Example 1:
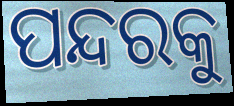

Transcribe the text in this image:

ପନ୍ଦରକୁ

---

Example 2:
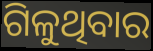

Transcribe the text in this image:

ଗିଳୁଥିବାର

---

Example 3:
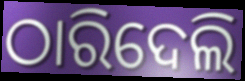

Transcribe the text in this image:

ଠାରିଦେଲି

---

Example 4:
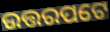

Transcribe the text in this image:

ଉତ୍ତରପଟେ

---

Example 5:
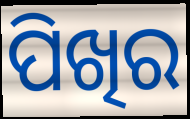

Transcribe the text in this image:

ପିଖିର